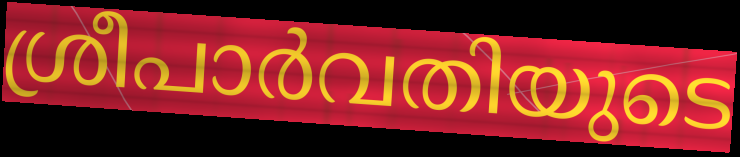
ശ്രീപാർവതിയുടെ